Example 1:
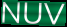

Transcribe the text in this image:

NUV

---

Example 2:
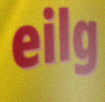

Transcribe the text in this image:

eilg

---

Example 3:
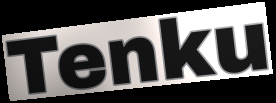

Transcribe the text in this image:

Tenku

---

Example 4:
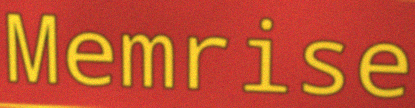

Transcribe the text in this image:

Memrise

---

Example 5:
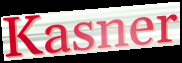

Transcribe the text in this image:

Kasner